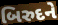
બિરુદને